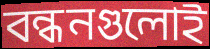
বন্ধনগুলোই